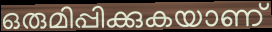
ഒരുമിപ്പിക്കുകയാണ്